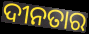
ଦୀନତାର